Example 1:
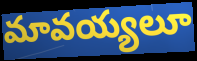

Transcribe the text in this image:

మావయ్యలూ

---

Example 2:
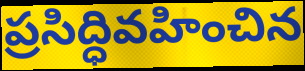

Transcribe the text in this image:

ప్రసిద్ధివహించిన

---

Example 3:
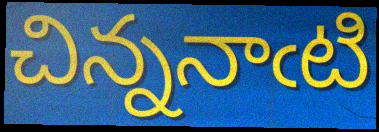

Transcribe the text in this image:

చిన్ననాఁటి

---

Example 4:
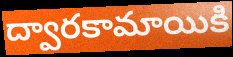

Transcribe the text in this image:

ద్వారకామాయికి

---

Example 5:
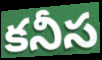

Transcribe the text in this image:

కనీస